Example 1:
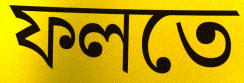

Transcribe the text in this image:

ফলতে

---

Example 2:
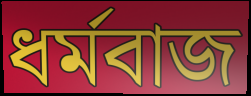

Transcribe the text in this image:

ধর্মবাজ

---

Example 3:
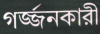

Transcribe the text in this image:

গর্জ্জনকারী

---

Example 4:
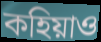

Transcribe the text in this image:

কহিয়াও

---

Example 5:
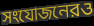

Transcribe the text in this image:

সংযোজনেরও